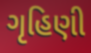
ગૃહિણી